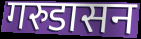
गरुडासन